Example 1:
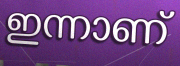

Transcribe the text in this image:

ഇന്നാണ്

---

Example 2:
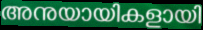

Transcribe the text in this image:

അനുയായികളായി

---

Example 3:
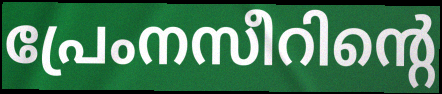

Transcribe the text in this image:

പ്രേംനസീറിന്റെ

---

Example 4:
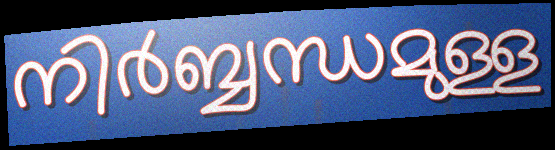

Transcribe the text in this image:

നിർബ്ബന്ധമുള്ള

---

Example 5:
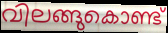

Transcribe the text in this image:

വിലങ്ങുകൊണ്ട്